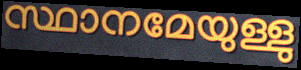
സ്ഥാനമേയുള്ളു